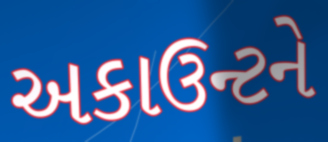
અકાઉન્ટને